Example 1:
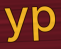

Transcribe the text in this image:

yp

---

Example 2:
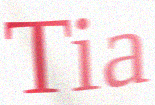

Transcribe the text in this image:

Tia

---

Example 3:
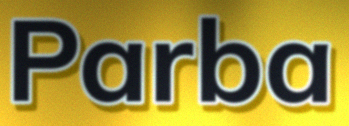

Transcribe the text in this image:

Parba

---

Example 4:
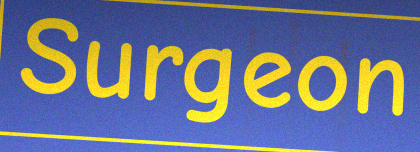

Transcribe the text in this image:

Surgeon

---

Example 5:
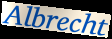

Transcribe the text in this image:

Albrecht